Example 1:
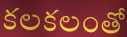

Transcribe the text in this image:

కలకలంతో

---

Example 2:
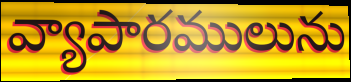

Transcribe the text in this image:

వ్యాపారములును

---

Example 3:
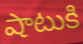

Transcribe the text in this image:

షాటుకి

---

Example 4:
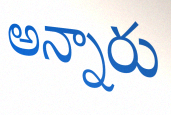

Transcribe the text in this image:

అన్నారు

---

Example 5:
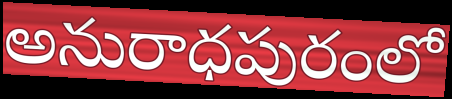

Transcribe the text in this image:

అనురాధపురంలో